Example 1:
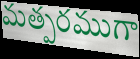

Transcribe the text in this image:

మత్పరముగా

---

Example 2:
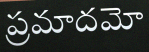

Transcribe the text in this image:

ప్రమాదమో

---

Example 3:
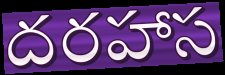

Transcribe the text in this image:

దరహాస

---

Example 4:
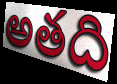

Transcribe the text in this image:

అతది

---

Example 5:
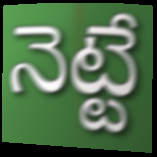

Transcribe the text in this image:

నెట్టే